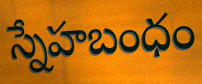
స్నేహబంధం